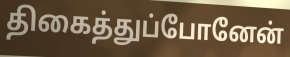
திகைத்துப்போனேன்